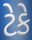
ટેકે